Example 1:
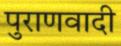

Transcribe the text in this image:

पुराणवादी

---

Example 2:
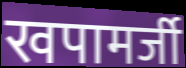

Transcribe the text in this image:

खपामर्जी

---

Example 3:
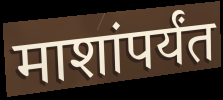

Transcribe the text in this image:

माशांपर्यंत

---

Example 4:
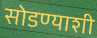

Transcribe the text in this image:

सोडण्याशी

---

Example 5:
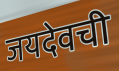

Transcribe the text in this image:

जयदेवची